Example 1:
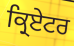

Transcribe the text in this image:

ਕ੍ਰਿਏਟਰ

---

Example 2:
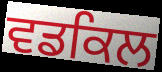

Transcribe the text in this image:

ਵਡਕਿਲ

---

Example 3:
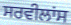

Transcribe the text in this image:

ਸਰਵੀਲਾਂਸ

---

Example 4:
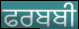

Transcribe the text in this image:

ਫਰਬਬੀ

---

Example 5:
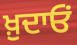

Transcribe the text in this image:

ਖ਼ੁਦਾਓਂ